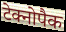
टेक्नोपैक